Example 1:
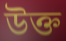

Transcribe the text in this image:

উক্ত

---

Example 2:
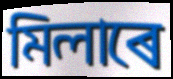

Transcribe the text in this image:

মিলাৰে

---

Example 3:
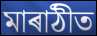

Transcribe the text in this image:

মাৰাঠীত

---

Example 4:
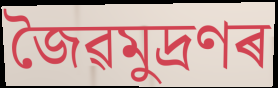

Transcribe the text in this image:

জৈৱমুদ্ৰণৰ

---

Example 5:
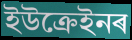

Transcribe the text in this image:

ইউক্ৰেইনৰ